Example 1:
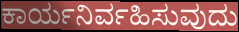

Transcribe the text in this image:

ಕಾರ್ಯನಿರ್ವಹಿಸುವುದು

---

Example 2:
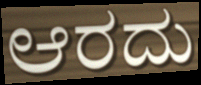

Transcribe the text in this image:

ಆರದು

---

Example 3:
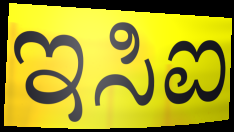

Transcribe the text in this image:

ಇಸಿಐ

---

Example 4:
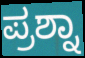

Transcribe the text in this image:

ಪ್ರಶ್ನಾ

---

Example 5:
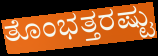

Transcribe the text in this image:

ತೊಂಭತ್ತರಷ್ಟು